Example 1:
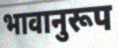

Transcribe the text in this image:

भावानुरूप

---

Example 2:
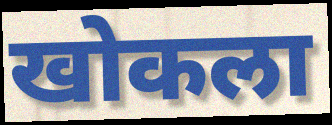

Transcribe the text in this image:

खोकला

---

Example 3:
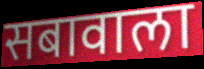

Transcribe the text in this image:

सबावाला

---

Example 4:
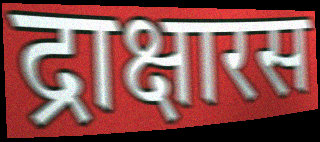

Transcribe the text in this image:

द्राक्षारस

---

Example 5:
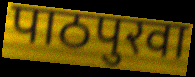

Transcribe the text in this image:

पाठपुरवा